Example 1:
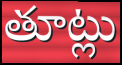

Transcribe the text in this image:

తూట్లు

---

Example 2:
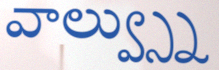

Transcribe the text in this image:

వాల్వ్స్ను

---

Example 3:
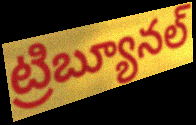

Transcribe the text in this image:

ట్రిబ్యూనల్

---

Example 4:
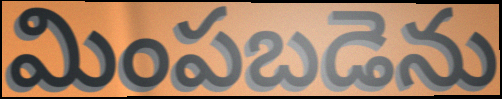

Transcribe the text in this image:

మింపబడెను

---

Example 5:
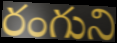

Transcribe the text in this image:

రంగుని